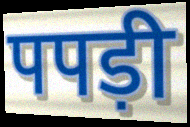
पपड़ी